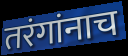
तरंगांनाच